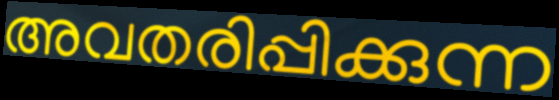
അവതരിപ്പിക്കുന്ന